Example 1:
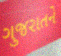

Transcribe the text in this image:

ગુજરાતને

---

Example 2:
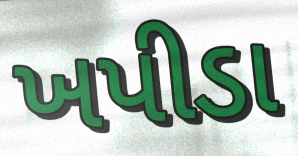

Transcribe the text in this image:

ખપીડા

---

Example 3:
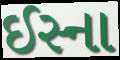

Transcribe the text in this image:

ઈસ્ના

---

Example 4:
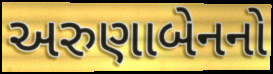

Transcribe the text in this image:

અરુણાબેનનો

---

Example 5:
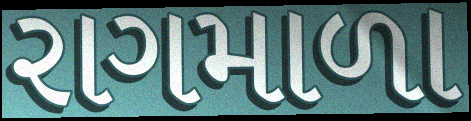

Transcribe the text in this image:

રાગમાળા